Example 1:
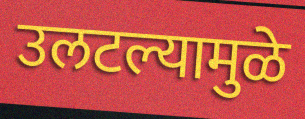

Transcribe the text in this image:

उलटल्यामुळे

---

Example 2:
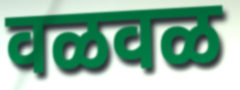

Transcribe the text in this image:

वळवळ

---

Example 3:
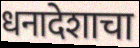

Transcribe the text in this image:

धनादेशाचा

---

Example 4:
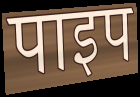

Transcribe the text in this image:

पाइप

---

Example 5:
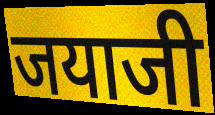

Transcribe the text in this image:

जयाजी